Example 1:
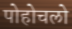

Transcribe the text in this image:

पोहोचलो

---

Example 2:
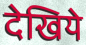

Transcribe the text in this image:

देखिये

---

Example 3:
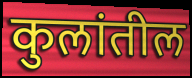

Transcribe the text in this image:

कुलांतील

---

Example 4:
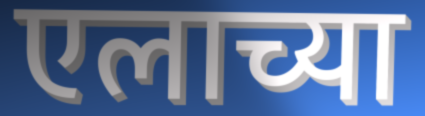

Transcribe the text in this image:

एलाच्या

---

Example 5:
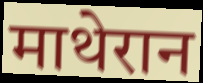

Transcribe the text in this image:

माथेरान